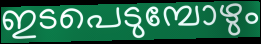
ഇടപെടുമ്പോഴും